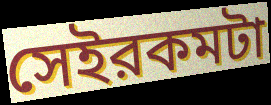
সেইরকমটা